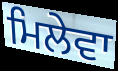
ਮਿਲੇਵਾ